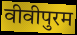
वीवीपुरम